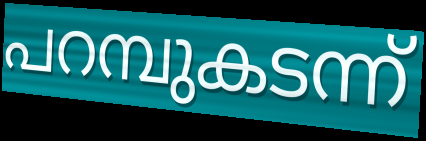
പറമ്പുകടന്ന്